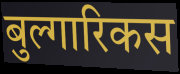
बुल्गारिकस